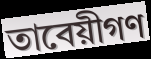
তাবেয়ীগণ